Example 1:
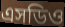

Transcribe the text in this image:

এসডিও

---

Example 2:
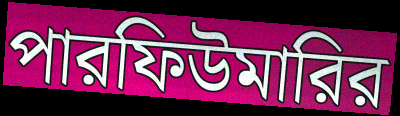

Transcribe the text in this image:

পারফিউমারির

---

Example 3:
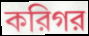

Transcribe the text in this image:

করিগর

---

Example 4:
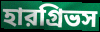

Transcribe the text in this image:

হারগ্রিভস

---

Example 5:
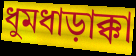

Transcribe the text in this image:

ধুমধাড়াক্কা